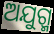
ଅଯୁଗ୍ମ